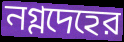
নগ্নদেহের